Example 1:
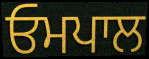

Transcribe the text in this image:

ਓਮਪਾਲ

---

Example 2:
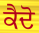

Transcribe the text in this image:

ਕੈਦੋ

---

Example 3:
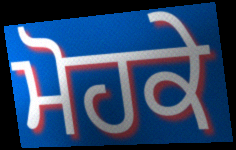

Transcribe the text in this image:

ਮੋਹਕੇ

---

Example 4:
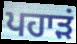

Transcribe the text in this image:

ਪਹਾੜਂ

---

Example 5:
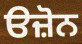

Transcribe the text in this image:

ੳਜ਼ੋਨ